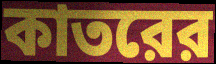
কাতরের